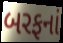
બરફનાં